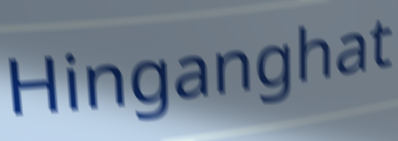
Hinganghat